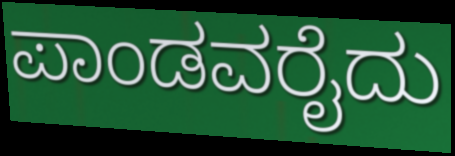
ಪಾಂಡವರೈದು